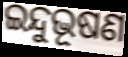
ଇନ୍ଦୁଭୂଷଣ